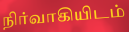
நிர்வாகியிடம்